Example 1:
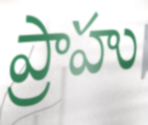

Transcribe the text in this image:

ప్రాహు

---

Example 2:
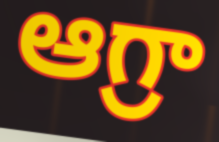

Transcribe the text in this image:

ఆగ్రా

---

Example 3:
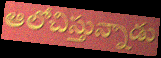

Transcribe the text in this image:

ఆలోచిస్తున్నాడు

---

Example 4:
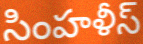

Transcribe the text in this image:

సింహళీస్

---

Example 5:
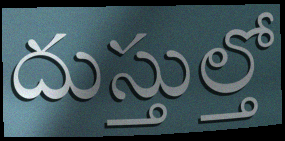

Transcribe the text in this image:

దుస్తుల్తో